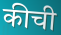
कीची